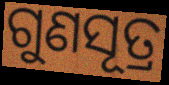
ଗୁଣସୂତ୍ର